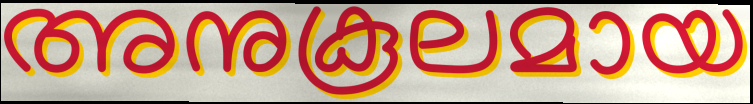
അനുകൂലമായ